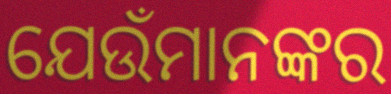
ଯେଉଁମାନଙ୍କର